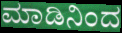
ಮಾಡಿನಿಂದ